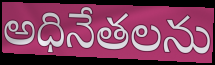
అధినేతలను